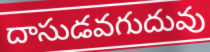
దాసుడవగుదువు